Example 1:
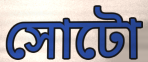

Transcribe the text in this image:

সোটো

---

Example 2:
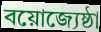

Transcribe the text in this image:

বয়োজ্যেষ্ঠা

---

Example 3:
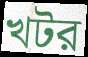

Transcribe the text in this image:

খটর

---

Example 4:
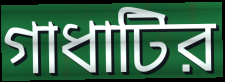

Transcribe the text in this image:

গাধাটির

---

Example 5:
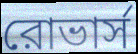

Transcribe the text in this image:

রোভার্স